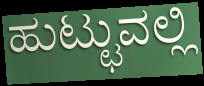
ಹುಟ್ಟುವಲ್ಲಿ